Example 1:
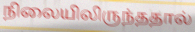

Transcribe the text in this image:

நிலையிலிருந்ததால்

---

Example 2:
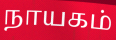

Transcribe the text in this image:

நாயகம்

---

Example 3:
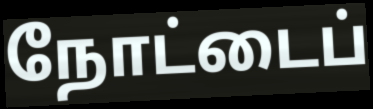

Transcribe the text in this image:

நோட்டைப்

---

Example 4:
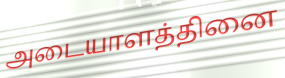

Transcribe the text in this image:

அடையாளத்தினை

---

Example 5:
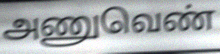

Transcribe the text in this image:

அணுவெண்